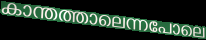
കാന്തത്താലെന്നപോലെ